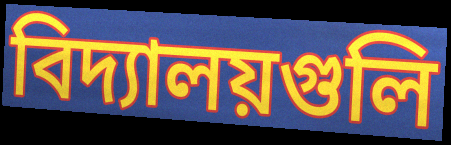
বিদ্যালয়গুলি